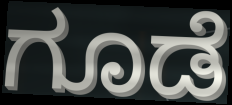
ಗೂಡೆ